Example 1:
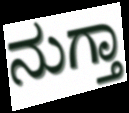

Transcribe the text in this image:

ನುಗ್ತಾ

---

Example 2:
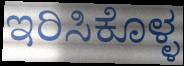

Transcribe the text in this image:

ಇರಿಸಿಕೊಳ್ಳ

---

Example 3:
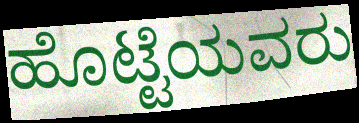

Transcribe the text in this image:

ಹೊಟ್ಟೆಯವರು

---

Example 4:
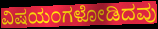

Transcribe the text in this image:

ವಿಷಯಂಗಳೋಡಿದವು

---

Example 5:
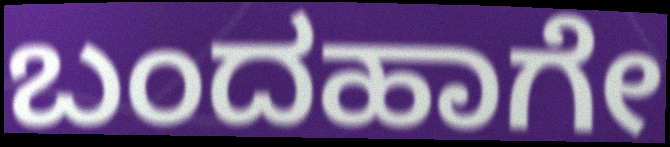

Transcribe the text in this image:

ಬಂದಹಾಗೇ